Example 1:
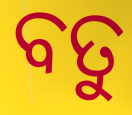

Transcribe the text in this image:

ବତୁ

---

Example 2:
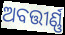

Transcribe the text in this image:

ଅବତ୍ତୀର୍ଣ୍ଣ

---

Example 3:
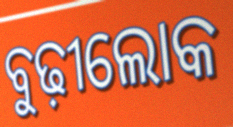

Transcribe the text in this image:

ବୁଢ଼ୀଲୋକ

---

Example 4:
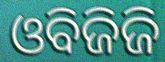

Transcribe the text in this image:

ଓବିଜିଜି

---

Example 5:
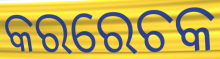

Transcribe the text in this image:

କରରେଚକ